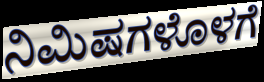
ನಿಮಿಷಗಳೊಳಗೆ